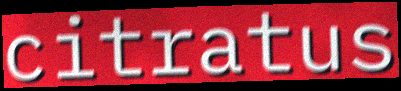
citratus